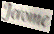
Jerome